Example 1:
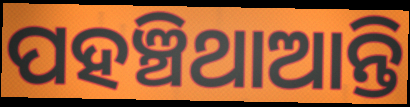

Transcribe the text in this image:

ପହଞ୍ଚିଥାଆନ୍ତି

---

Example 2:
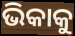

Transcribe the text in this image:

ଭିକାକୁ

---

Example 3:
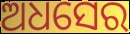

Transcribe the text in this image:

ଅଧସେର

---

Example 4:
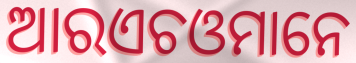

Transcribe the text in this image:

ଆରଏଚଓମାନେ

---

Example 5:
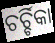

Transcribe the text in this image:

ଚର୍ଚ୍ଚିକା